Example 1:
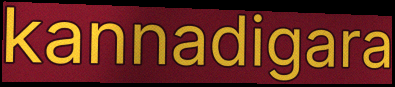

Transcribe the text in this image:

kannadigara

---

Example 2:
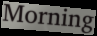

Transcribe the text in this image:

Morning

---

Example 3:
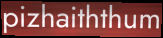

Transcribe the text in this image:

pizhaiththum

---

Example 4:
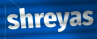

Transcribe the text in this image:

shreyas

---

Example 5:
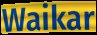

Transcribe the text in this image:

Waikar